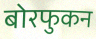
बोरफुकन